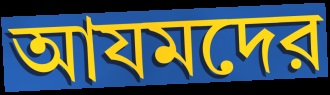
আযমদের